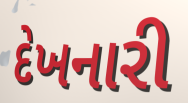
દેખનારી